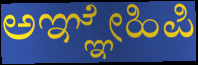
ಅಞ್ಞೇಹಿಪಿ